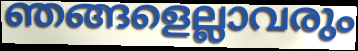
ഞങ്ങളെല്ലാവരും